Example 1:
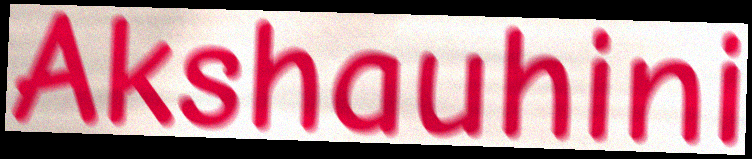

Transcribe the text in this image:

Akshauhini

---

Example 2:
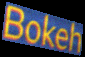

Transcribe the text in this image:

Bokeh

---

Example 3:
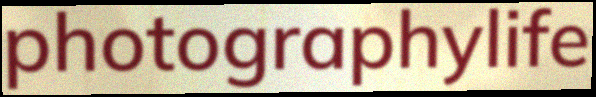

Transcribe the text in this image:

photographylife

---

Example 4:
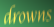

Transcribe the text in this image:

drowns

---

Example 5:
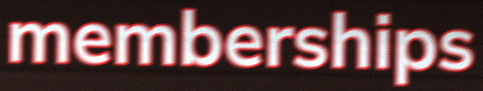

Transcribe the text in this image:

memberships